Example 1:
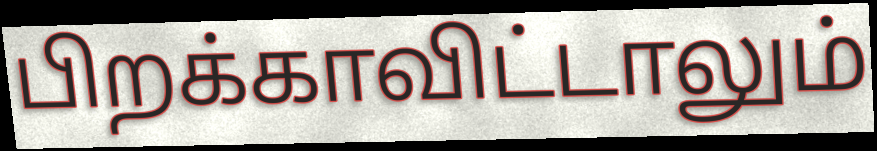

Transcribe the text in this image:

பிறக்காவிட்டாலும்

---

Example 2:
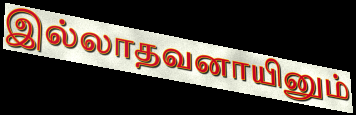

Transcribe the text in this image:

இல்லாதவனாயினும்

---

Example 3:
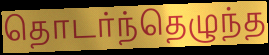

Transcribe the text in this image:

தொடர்ந்தெழுந்த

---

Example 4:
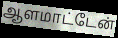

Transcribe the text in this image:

ஆளமாட்டேன்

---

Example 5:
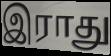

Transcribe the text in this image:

இராது